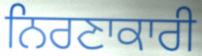
ਨਿਰਣਾਕਾਰੀ